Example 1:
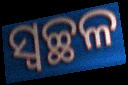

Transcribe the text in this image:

ସ୍ୱଚ୍ଛଳ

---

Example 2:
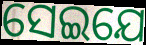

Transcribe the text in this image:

ସେଇଯେ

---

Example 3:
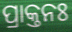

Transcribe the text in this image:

ପ୍ରାକ୍ତନଃ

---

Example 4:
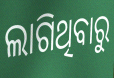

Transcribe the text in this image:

ଲାଗିଥିବାରୁ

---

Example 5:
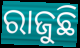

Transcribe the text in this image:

ରାଜୁଛି